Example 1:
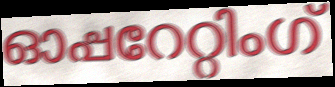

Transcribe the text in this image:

ഓപ്പറേറ്റിംഗ്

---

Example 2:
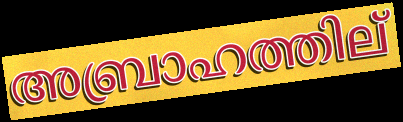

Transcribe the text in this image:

അബ്രാഹത്തില്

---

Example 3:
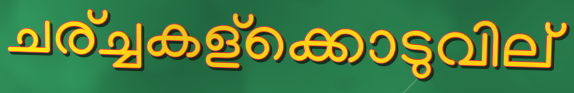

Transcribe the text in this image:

ചര്ച്ചകള്ക്കൊടുവില്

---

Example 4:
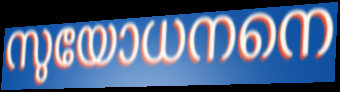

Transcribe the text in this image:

സുയോധനനെ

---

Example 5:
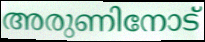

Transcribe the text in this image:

അരുണിനോട്